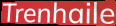
Trenhaile